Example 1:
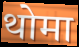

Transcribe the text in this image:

थोमा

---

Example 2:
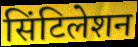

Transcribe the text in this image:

सिंटिलेशन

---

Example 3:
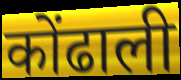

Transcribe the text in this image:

कोंढाली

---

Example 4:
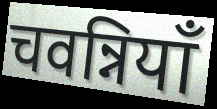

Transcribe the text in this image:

चवन्नियाँ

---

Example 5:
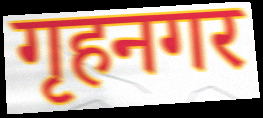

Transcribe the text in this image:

गृहनगर